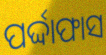
ପର୍ଦ୍ଦାଫାସ